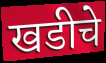
खडीचे